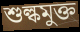
শুল্কমুক্ত